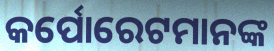
କର୍ପୋରେଟମାନଙ୍କ